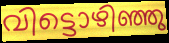
വിട്ടൊഴിഞ്ഞു